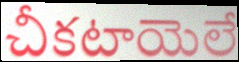
చీకటాయెలే